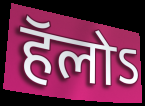
हॅलोऽ